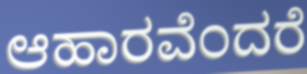
ಆಹಾರವೆಂದರೆ